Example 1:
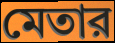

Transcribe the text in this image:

মেতার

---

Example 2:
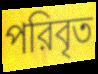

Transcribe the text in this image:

পরিবৃত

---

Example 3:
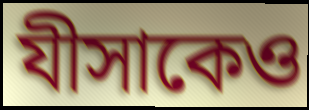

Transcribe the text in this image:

যীসাকেও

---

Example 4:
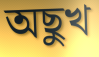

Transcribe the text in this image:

অছুখ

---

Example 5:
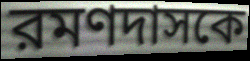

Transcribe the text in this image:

রমণদাসকে